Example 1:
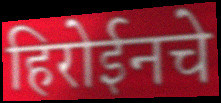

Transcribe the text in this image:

हिरोईनचे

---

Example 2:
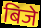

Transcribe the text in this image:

बिजे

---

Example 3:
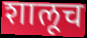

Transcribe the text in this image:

शालूच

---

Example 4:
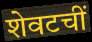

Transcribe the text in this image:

शेवटचीं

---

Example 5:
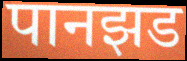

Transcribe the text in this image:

पानझड